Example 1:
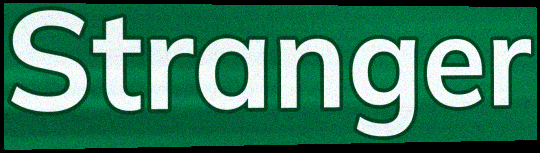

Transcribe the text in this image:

Stranger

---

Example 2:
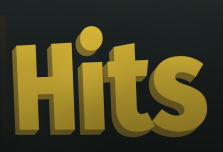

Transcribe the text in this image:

Hits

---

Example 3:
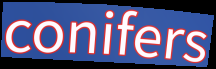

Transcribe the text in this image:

conifers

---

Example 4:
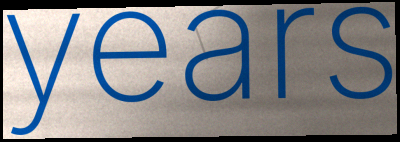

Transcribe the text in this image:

years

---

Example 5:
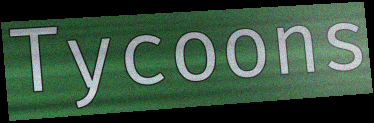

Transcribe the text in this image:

Tycoons